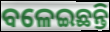
ବଳେଇଛନ୍ତି